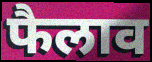
फैलाव